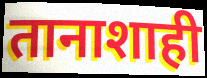
तानाशाही